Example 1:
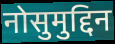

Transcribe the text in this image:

नोसुमुद्दिन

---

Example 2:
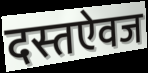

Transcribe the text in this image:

दस्तऐवज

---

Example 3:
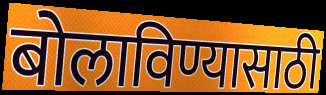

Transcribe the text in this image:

बोलाविण्यासाठी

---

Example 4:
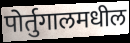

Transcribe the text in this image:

पोर्तुगालमधील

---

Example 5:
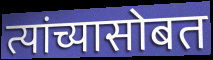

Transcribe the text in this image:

त्यांच्यासोबत